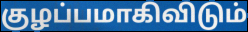
குழப்பமாகிவிடும்